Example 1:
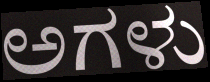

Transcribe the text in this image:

ಅಗಳು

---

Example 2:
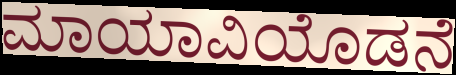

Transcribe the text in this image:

ಮಾಯಾವಿಯೊಡನೆ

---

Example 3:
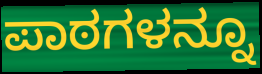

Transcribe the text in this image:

ಪಾಠಗಳನ್ನೂ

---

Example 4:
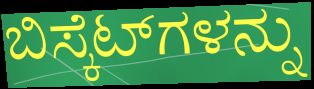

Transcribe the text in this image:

ಬಿಸ್ಕೆಟ್‌ಗಳನ್ನು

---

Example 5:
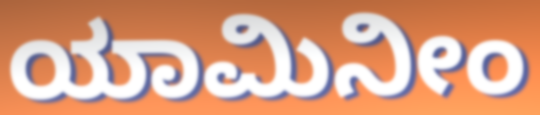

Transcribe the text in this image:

ಯಾಮಿನೀಂ